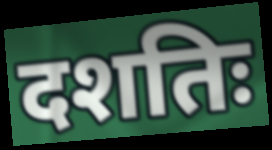
दशतिः